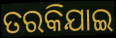
ତରକିଯାଇ